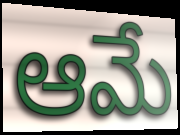
ఆమే